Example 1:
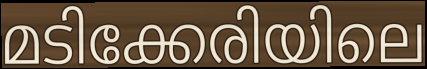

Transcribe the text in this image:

മടിക്കേരിയിലെ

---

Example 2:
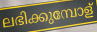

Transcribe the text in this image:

ലഭിക്കുമ്പോള്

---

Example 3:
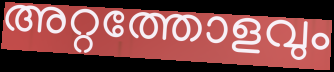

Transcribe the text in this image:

അറ്റത്തോളവും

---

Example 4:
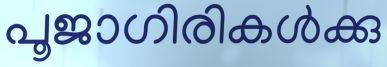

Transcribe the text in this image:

പൂജാഗിരികൾക്കു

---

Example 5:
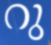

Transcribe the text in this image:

റു